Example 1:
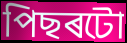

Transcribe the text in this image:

পিছৰটো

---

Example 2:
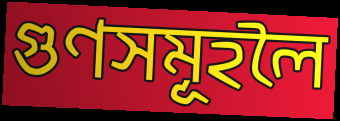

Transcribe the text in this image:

গুণসমূহলৈ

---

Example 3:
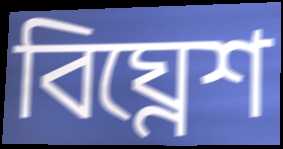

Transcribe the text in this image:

বিঘ্নেশ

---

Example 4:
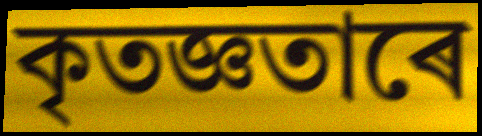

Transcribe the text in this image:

কৃতজ্ঞতাৰে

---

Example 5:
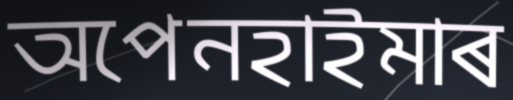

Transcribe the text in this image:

অপেনহাইমাৰ